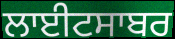
ਲਾਈਟਸਾਬਰ